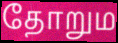
தோறும